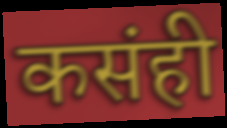
कसंही